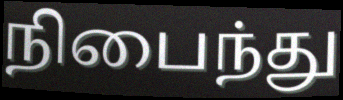
நிபைந்து